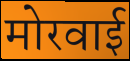
मोरवाई